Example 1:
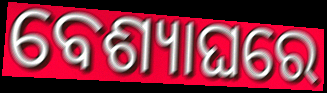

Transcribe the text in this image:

ବେଶ୍ୟାଘରେ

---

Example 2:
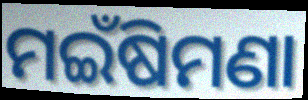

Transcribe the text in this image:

ମଇଁଷିମଣା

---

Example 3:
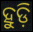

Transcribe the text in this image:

ହୁଡ଼ି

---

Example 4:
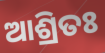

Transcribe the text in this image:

ଆଶ୍ରିତଃ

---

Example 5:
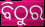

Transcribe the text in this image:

ବିଠୁର